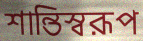
শান্তিস্বরূপ